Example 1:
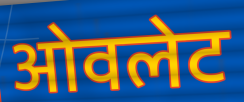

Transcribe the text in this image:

ओवलेट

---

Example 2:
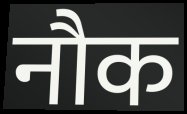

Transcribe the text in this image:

नौक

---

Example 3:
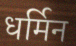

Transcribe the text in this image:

धर्मिन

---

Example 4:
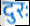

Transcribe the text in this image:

दुरः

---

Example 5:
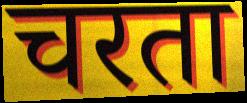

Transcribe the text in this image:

चरता